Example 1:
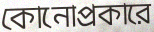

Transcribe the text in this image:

কোনোপ্রকারে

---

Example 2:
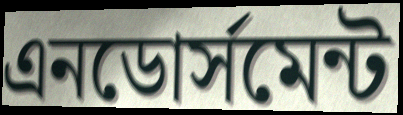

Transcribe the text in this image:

এনডোর্সমেন্ট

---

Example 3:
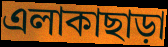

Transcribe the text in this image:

এলাকাছাড়া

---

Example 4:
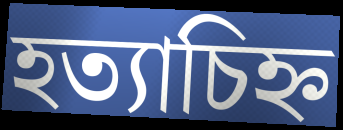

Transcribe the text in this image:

হত্যাচিহ্ন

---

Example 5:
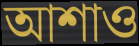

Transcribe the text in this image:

আশাও